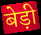
बेड़ी